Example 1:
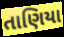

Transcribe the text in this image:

તાણિયા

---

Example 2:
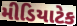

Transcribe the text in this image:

મીડિયાટેક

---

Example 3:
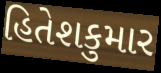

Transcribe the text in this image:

હિતેશકુમાર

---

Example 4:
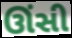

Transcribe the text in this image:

ઊંસી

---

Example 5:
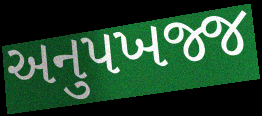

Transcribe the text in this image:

અનુપખજ્જ